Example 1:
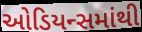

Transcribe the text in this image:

ઓડિયન્સમાંથી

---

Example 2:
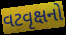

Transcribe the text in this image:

વટવૃક્ષનો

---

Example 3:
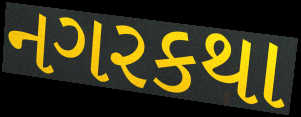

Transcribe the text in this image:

નગરકથા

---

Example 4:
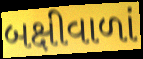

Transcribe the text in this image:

બક્ષીવાળાં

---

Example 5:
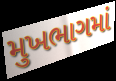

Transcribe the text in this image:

મુખભાગમાં